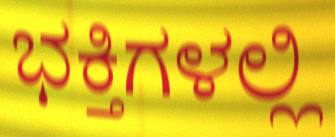
ಭಕ್ತಿಗಳಲ್ಲಿ